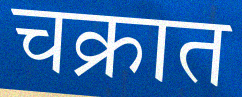
चक्रात